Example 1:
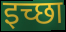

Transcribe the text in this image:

इच्‍छा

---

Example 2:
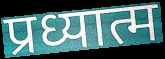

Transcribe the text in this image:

प्रध्यात्म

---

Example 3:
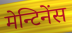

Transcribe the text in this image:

मेन्टिनेंस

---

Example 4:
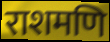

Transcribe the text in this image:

राशमणि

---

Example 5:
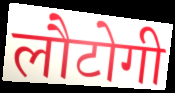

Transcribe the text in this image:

लौटोगी